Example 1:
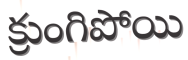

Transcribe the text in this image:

క్రుంగిపోయి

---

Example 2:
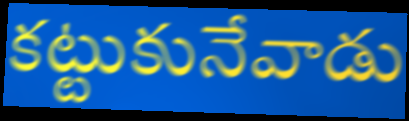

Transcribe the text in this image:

కట్టుకునేవాడు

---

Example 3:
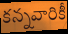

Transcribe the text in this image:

కన్నవారికీ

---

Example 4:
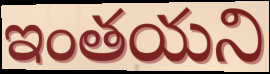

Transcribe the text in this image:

ఇంతయని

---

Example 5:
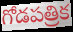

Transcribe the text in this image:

గోడపత్రిక